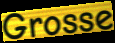
Grosse